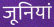
जूनियां